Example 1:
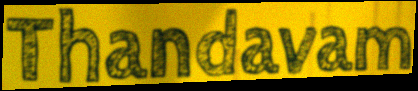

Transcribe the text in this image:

Thandavam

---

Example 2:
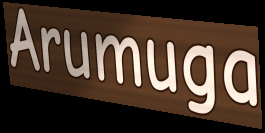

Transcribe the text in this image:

Arumuga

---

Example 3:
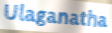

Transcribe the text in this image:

Ulaganatha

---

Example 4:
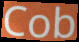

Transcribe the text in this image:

Cob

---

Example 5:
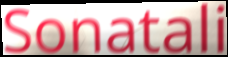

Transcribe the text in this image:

Sonatali